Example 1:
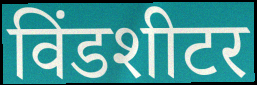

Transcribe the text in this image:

विंडशीटर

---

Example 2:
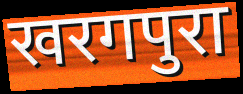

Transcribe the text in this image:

खरगपुरा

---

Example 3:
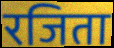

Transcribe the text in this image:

रजिता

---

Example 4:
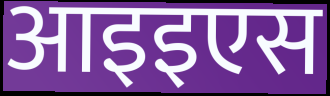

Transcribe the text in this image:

आइइएस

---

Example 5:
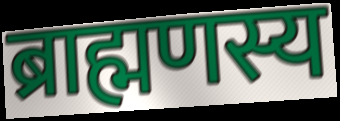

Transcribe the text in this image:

ब्राह्मणस्य